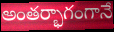
అంతర్భాగంగానే